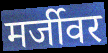
मर्जीवर